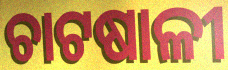
ଚାଟଷାଳୀ